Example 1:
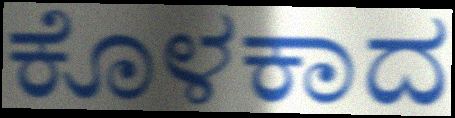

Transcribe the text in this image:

ಕೊಳಕಾದ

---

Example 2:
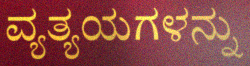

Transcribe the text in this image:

ವ್ಯತ್ಯಯಗಳನ್ನು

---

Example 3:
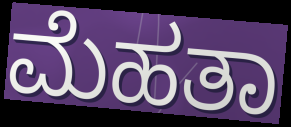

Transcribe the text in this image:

ಮೆಹತಾ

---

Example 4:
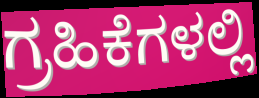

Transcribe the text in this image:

ಗ್ರಹಿಕೆಗಳಲ್ಲಿ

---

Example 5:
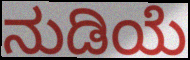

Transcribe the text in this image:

ನುಡಿಯೆ